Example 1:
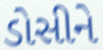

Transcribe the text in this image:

ડોસીને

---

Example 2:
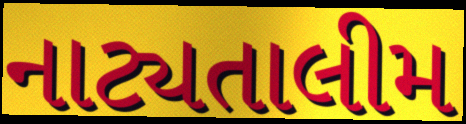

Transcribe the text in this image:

નાટ્યતાલીમ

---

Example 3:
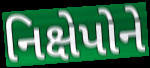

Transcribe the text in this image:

નિક્ષેપોને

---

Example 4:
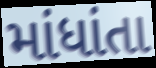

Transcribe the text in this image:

માંધાંતા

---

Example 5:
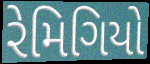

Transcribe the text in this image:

રેમિગિયો